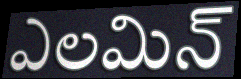
ఎలమిన్